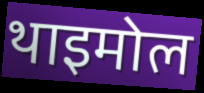
थाइमोल